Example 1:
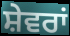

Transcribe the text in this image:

ਸ਼ੇਵਰਾਂ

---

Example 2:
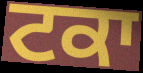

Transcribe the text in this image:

ਟਕਾ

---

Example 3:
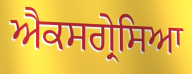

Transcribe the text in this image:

ਐਕਸਗ੍ਰੇਸਿਆ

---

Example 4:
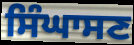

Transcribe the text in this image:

ਸਿੰਘਾਸਣ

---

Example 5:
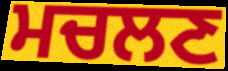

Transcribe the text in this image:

ਮਚਲਣ